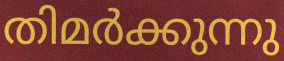
തിമർക്കുന്നു